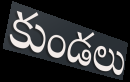
కుండలు